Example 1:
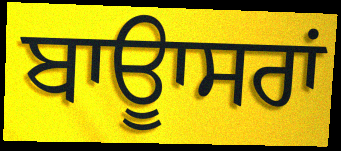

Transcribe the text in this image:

ਬਾਊਾਸਰਾਂ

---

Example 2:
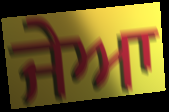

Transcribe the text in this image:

ਜੇਆ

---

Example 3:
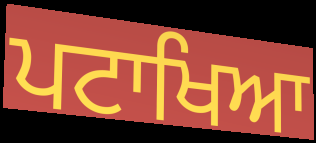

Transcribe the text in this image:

ਪਟਾਖਿਆ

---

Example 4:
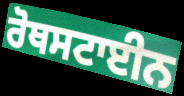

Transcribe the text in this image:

ਰੋਥਸਟਾਈਨ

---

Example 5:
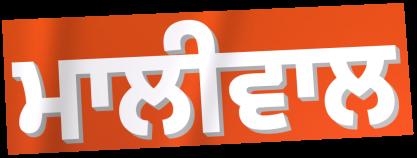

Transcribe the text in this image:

ਮਾਲੀਵਾਲ